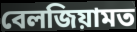
বেলজিয়ামত